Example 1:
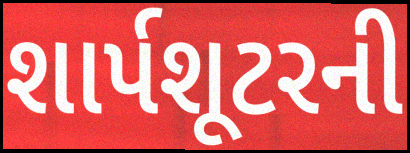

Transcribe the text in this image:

શાર્પશૂટરની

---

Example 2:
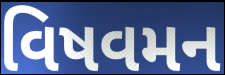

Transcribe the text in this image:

વિષવમન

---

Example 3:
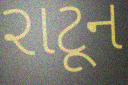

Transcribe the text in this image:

રાટૂન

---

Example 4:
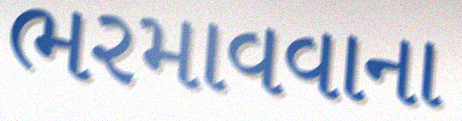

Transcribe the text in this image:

ભરમાવવાના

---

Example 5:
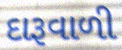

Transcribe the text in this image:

દારૂવાળી